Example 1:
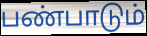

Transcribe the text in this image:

பண்பாடும்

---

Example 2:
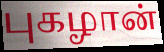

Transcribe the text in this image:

புகழான்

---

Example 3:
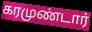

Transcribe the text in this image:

கரமுண்டார்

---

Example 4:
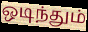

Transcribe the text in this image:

ஒடிந்தும்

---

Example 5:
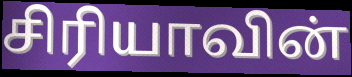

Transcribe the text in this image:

சிரியாவின்